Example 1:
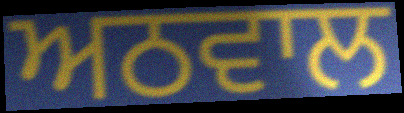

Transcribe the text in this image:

ਅਠਵਾਲ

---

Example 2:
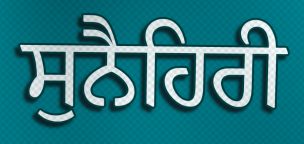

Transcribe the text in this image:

ਸੁਨੈਹਿਰੀ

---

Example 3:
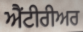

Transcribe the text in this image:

ਐਂਟੀਰੀਅਰ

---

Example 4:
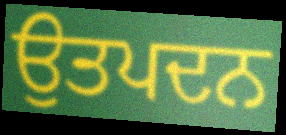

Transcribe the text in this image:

ਉਤਪਦਨ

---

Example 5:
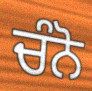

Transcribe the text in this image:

ਚੰਨੋ